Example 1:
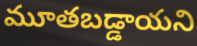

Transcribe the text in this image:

మూతబడ్డాయని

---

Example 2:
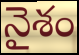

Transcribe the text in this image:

నైశం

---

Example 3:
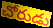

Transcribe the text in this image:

చోరుడు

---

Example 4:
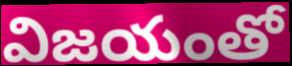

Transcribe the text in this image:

విజయంతో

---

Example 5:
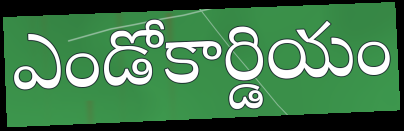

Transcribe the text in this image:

ఎండోకార్డియం